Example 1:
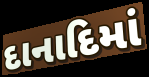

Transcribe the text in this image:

દાનાદિમાં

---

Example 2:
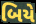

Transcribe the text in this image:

બિયે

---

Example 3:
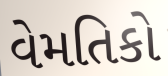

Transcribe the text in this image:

વેમતિકો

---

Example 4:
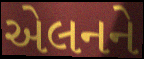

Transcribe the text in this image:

એલનને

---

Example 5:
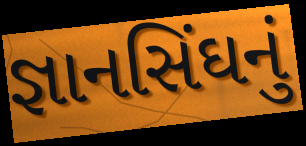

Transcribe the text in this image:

જ્ઞાનસિંઘનું